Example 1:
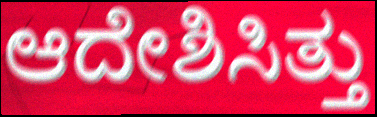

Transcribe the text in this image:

ಆದೇಶಿಸಿತ್ತು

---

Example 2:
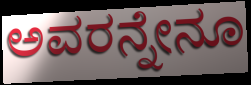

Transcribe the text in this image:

ಅವರನ್ನೇನೂ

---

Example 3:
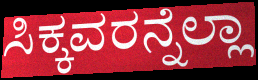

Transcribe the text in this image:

ಸಿಕ್ಕವರನ್ನೆಲ್ಲಾ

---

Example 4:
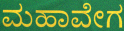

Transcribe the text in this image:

ಮಹಾವೇಗ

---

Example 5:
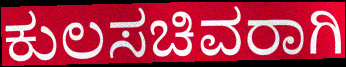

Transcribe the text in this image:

ಕುಲಸಚಿವರಾಗಿ